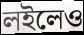
লইলেও